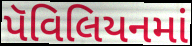
પૅવિલિયનમાં